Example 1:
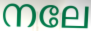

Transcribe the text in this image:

നലേ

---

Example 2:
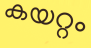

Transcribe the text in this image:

കയറ്റം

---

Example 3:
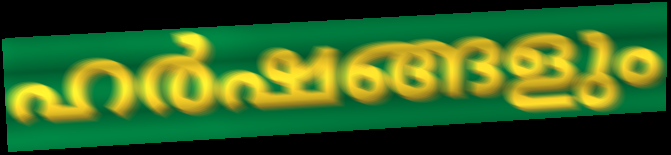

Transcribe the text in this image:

ഹർഷങ്ങളും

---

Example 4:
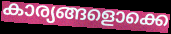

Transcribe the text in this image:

കാര്യങ്ങളൊക്കെ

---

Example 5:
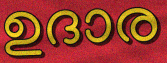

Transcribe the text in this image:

ഉദാര